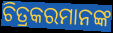
ଚିତ୍ରକରମାନଙ୍କ